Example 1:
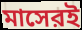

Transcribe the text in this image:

মাসেরই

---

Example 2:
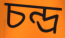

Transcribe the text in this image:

চন্দ্র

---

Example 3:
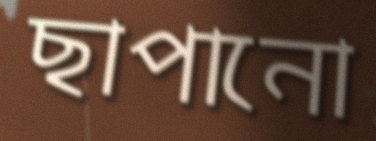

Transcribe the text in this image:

ছাপানো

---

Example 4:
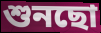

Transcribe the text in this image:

শুনছো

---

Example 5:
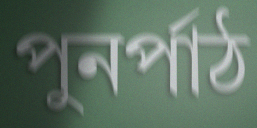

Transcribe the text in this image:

পুনর্পাঠ